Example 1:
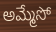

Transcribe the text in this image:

అమ్మేసో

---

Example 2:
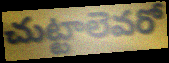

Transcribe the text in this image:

చుట్టాలెవరో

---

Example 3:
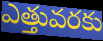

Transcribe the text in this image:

ఎత్తువరకు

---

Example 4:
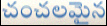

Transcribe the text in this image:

చంచలమైన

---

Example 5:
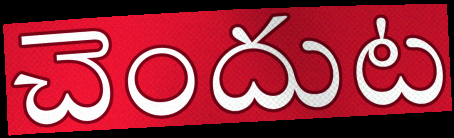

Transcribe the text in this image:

చెందుట